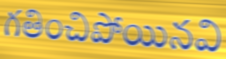
గతించిపోయినవి